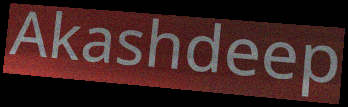
Akashdeep